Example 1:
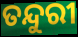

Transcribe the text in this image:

ତନ୍ଦୁରୀ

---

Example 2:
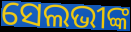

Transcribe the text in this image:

ସେଲଭୀଙ୍କ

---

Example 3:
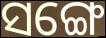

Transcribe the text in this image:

ସଙ୍ଗେ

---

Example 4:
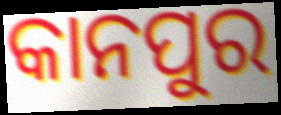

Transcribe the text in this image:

କାନପୁର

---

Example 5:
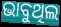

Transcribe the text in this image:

ଭାବୁଥିଲ